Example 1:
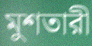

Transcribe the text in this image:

মুশতারী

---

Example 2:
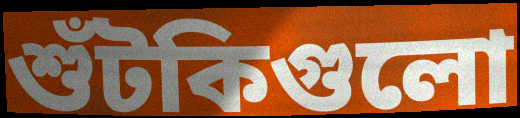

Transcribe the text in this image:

শুঁটকিগুলো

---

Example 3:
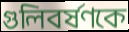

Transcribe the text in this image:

গুলিবর্ষণকে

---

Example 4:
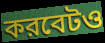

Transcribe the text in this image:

করবেটও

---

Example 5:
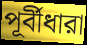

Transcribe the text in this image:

পূর্বীধারা